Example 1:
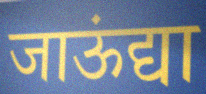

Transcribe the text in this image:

जाऊंद्या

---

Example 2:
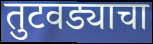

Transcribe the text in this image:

तुटवड्याचा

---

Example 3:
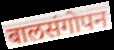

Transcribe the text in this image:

बालसंगोपन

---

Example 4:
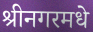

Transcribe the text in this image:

श्रीनगरमधे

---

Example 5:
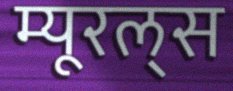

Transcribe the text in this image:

म्यूरल्स